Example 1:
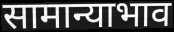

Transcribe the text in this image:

सामान्याभाव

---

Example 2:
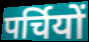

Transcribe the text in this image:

पर्चियों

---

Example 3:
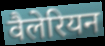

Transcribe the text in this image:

वैलेरियन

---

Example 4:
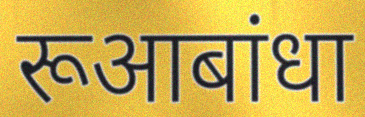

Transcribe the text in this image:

रूआबांधा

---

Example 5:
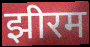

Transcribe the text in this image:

झीरम